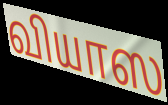
வியாஸ